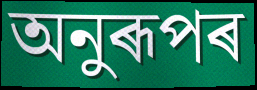
অনুৰূপৰ